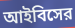
আইবিসের